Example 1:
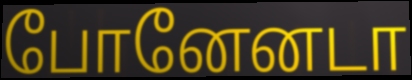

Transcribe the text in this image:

போனேனடா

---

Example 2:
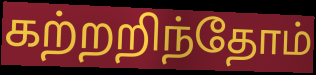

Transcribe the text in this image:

கற்றறிந்தோம்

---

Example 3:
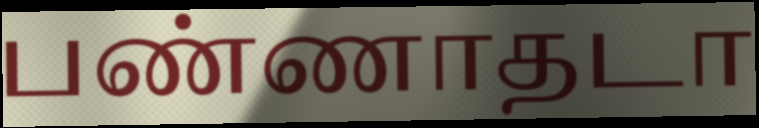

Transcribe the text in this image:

பண்ணாதடா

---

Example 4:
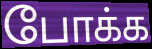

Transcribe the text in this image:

போக்க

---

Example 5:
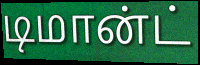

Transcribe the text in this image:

டிமான்ட்